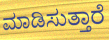
ಮಾಡಿಸುತ್ತಾರೆ